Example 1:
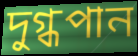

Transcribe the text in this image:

দুগ্ধপান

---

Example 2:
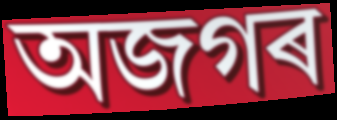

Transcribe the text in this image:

অজগৰ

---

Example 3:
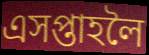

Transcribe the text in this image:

এসপ্তাহলৈ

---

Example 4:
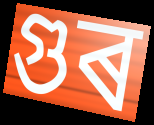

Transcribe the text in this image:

গুৰ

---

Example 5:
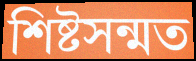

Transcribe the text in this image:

শিষ্টসন্মত